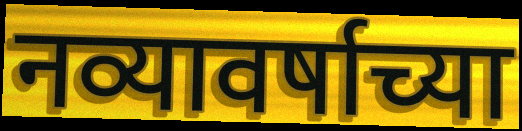
नव्यावर्षाच्या